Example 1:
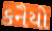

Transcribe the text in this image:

કનૈયો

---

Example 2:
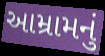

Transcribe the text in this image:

આમ્રામનું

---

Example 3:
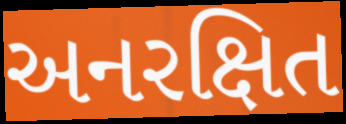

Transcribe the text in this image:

અનરક્ષિત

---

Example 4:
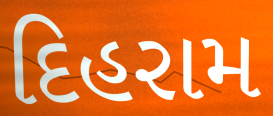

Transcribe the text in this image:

દિહરામ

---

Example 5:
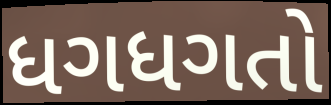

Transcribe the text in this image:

ધગધગતો